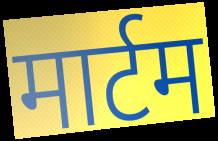
मार्टम